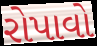
રોપાવો